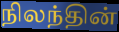
நிலந்தின்